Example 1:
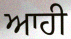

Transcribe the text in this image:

ਆਹੀ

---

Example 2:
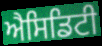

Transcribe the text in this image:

ਐਸਿਡਿਟੀ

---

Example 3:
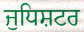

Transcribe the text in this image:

ਜੁਧਿਸ਼ਟਰ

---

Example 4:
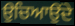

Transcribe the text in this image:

ਉਚਿਆਉਂਦੇ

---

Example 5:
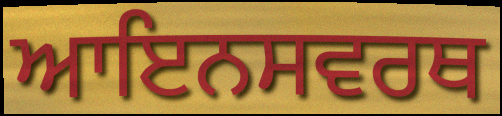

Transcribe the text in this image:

ਆਇਨਸਵਰਥ